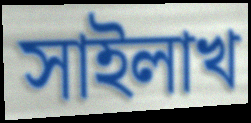
সাইলাখ